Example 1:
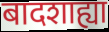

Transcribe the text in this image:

बादशाह्या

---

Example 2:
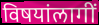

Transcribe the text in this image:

विषयांलागीं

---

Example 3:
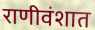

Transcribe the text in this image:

राणीवंशात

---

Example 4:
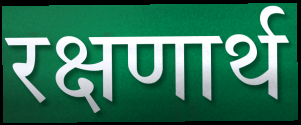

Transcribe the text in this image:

रक्षणार्थ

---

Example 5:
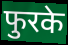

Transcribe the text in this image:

फुरके